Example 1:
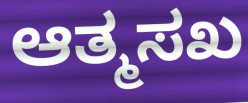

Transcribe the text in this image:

ಆತ್ಮಸಖ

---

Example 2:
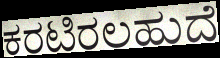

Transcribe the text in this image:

ಕರಟಿರಲಹುದೆ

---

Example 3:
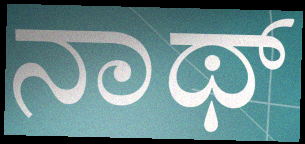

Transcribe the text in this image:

ನಾಥ್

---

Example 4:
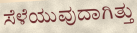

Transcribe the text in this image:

ಸೆಳೆಯುವುದಾಗಿತ್ತು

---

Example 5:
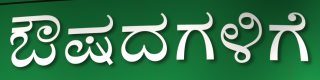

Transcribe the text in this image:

ಔಷದಗಳಿಗೆ